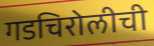
गडचिरोलीची